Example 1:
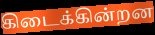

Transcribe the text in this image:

கிடைக்கின்றன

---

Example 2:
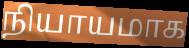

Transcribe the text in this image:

நியாயமாக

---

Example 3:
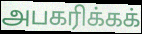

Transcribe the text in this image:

அபகரிக்கக்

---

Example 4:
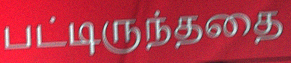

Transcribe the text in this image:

பட்டிருந்ததை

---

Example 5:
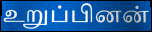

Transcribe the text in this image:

உறுப்பினன்